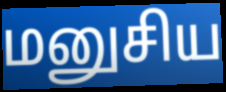
மனுசிய